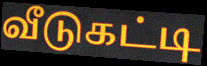
வீடுகட்டி